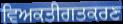
ਵਿਅਕਤੀਗਤਕਰਣ